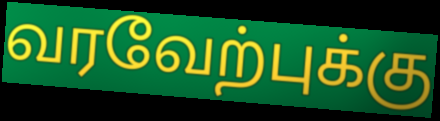
வரவேற்புக்கு